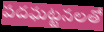
పదఘట్టనలతో